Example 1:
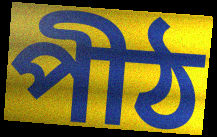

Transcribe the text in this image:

পীঠ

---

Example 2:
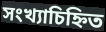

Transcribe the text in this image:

সংখ্যাচিহ্নিত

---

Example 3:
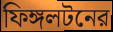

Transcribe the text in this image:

ফিঙ্গলটনের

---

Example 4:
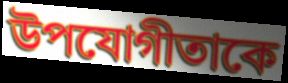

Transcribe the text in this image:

উপযোগীতাকে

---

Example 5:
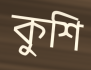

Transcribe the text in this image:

কুশি